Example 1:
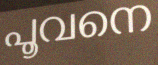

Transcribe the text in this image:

പൂവനെ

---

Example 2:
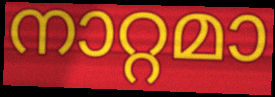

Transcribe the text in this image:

നാറ്റമാ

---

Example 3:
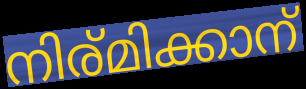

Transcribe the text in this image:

നിര്മിക്കാന്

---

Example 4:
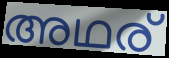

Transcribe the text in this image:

അഥര്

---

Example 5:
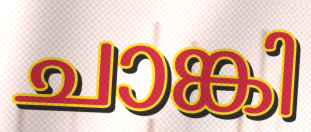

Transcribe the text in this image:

ചാങ്കി